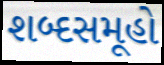
શબ્દસમૂહો